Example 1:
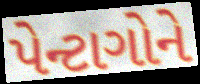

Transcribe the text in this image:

પેન્ટાગોને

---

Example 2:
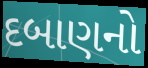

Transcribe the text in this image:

દબાણનો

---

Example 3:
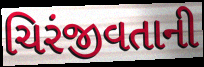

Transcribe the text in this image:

ચિરંજીવતાની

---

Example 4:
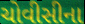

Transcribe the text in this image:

ચોવીસીના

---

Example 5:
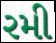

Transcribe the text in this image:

રમી